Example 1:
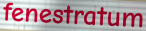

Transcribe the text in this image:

fenestratum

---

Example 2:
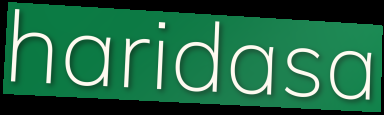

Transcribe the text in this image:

haridasa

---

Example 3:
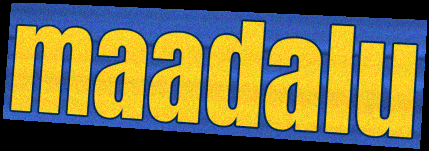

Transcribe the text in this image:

maadalu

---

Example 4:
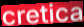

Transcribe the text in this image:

cretica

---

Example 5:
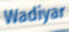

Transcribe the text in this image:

Wadiyar